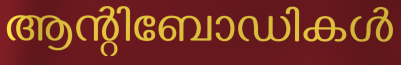
ആന്റിബോഡികൾ